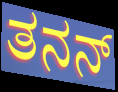
ತನನ್